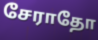
சேராதோ